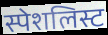
स्पेशलिस्ट